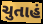
ચુતાહં